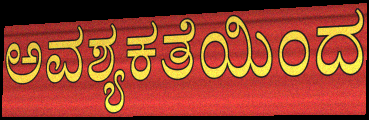
ಅವಶ್ಯಕತೆಯಿಂದ